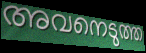
അവനെടുത്ത